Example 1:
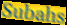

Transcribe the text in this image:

Subahs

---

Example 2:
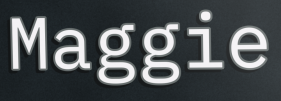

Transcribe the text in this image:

Maggie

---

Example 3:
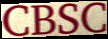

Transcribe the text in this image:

CBSC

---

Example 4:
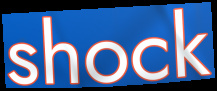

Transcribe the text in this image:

shock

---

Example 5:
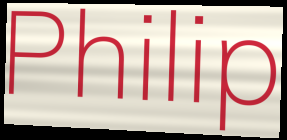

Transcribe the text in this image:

Philip